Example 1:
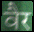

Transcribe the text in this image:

वैर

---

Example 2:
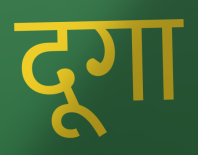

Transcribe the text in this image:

दूगा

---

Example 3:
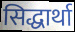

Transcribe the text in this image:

सिद्धार्था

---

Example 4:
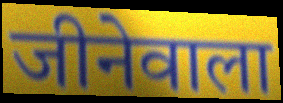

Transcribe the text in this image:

जीनेवाला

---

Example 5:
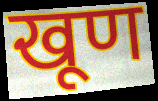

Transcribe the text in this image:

खूण